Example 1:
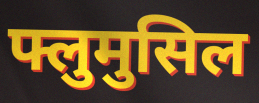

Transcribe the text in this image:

फ्लुमुसिल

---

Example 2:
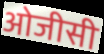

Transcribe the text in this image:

ओजीसी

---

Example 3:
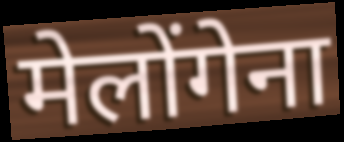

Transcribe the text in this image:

मेलोंगेना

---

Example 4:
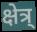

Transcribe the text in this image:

क्षेत्र्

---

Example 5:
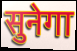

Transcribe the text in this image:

सुनेगा